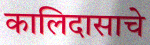
कालिदासाचे